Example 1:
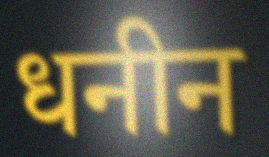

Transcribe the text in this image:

धनीन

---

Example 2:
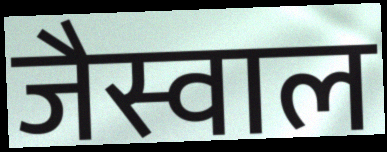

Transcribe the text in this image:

जैस्वाल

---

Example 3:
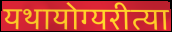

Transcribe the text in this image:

यथायोग्यरीत्या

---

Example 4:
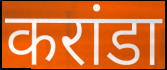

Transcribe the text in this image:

करांडा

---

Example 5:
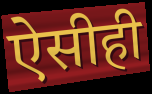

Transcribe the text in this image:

ऐसीही